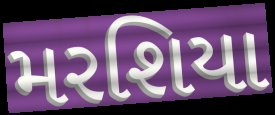
મરશિયા